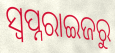
ସ୍ୱପ୍ନରାଇଜରୁ